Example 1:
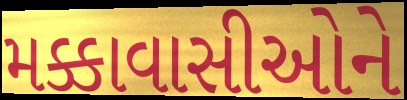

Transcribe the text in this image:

મક્કાવાસીઓને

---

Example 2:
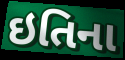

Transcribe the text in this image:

ઇતિના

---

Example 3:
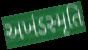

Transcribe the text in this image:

અખંડસ્મૃતિ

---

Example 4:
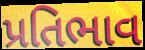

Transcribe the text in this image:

પ્રતિભાવ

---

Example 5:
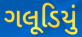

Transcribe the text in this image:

ગલૂડિયું